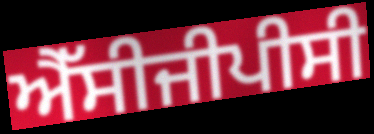
ਐੱਸੀਜੀਪੀਸੀ